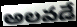
అలవడే